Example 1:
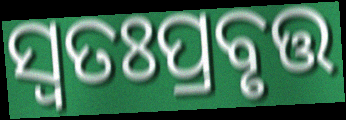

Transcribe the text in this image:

ସ୍ବତଃପ୍ରବୃତ୍ତ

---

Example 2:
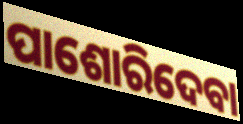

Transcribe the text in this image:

ପାଶୋରିଦେବା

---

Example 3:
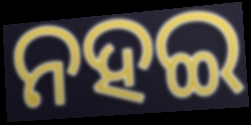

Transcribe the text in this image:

ନହଇ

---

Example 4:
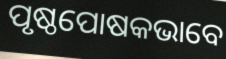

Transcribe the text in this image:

ପୃଷ୍ଠପୋଷକଭାବେ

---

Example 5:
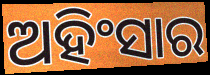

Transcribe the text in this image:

ଅହିଂସାର